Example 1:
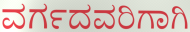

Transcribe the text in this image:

ವರ್ಗದವರಿಗಾಗಿ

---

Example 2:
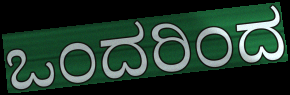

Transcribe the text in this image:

ಒಂದರಿಂದ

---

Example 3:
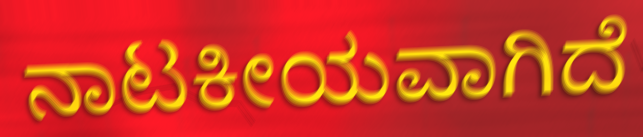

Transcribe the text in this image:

ನಾಟಕೀಯವಾಗಿದೆ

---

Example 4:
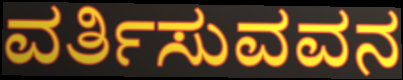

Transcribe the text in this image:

ವರ್ತಿಸುವವನ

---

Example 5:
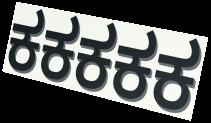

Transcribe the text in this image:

ಕಕಕಕಕ